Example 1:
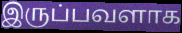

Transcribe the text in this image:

இருப்பவளாக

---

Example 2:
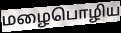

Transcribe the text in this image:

மழைபொழிய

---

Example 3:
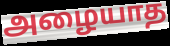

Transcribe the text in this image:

அழையாத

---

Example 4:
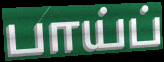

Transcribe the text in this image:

பாய்ப்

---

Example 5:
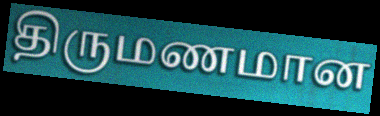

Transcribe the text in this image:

திருமணமான